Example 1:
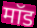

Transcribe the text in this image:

मॉड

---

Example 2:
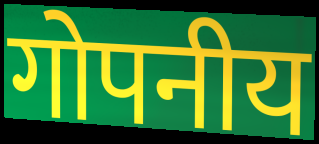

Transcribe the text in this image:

गोपनीय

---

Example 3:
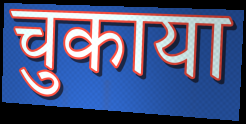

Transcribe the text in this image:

चुकाया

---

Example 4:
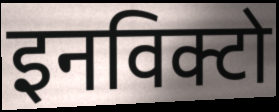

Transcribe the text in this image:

इनविक्टो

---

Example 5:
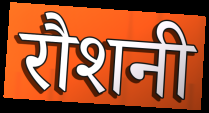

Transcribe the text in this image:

रौशनी